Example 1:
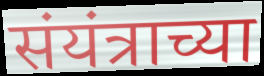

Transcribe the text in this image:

संयंत्राच्या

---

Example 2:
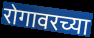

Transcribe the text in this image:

रोगावरच्या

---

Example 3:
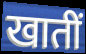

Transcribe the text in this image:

खातीं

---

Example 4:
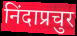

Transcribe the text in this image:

निंदाप्रचुर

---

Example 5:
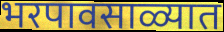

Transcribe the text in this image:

भरपावसाळ्यात